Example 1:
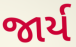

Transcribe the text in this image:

જાર્ય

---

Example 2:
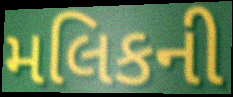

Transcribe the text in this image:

મલિકની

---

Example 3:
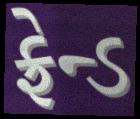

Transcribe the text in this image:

ફ્રેન્ડ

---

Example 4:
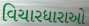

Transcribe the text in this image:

વિચારધારાઓ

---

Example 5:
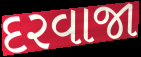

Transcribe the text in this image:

દરવાજા